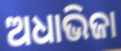
ଅଧାଭିଜା